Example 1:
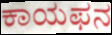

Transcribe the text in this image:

ಕಾಯಫನ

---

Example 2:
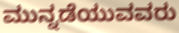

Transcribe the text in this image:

ಮುನ್ನಡೆಯುವವರು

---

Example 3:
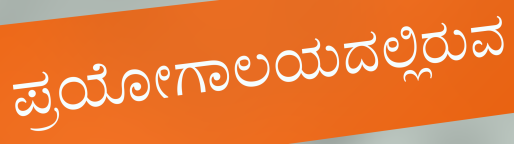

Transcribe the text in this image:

ಪ್ರಯೋಗಾಲಯದಲ್ಲಿರುವ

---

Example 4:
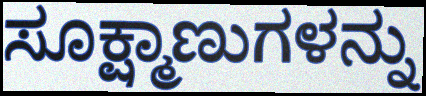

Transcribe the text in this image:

ಸೂಕ್ಷ್ಮಾಣುಗಳನ್ನು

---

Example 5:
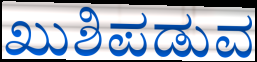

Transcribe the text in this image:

ಖುಶಿಪಡುವ